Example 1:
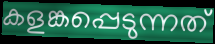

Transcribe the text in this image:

കളങ്കപ്പെടുന്നത്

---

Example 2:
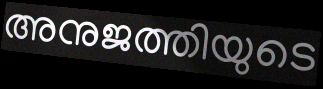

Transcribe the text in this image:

അനുജത്തിയുടെ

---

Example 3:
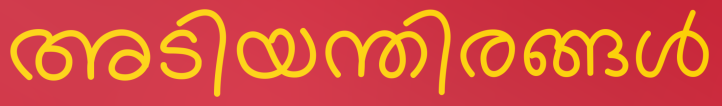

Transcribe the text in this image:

അടിയന്തിരങ്ങൾ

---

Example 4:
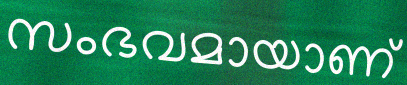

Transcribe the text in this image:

സംഭവമായാണ്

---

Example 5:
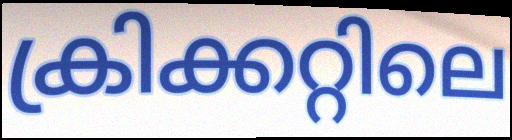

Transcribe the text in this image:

ക്രിക്കറ്റിലെ